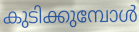
കുടിക്കുമ്പോൾ